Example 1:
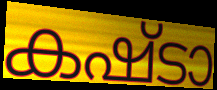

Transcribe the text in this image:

കഷ്ടാ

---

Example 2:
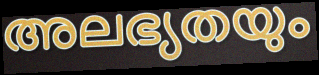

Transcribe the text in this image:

അലഭ്യതയും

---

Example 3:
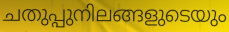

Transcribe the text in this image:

ചതുപ്പുനിലങ്ങളുടെയും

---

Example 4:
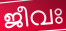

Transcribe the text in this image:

ജീവഃ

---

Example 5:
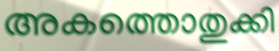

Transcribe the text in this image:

അകത്തൊതുക്കി